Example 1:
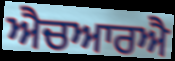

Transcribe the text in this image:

ਐਚਆਰਐ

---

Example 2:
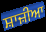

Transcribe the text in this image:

ਸ਼ਾਜ਼ੀਆ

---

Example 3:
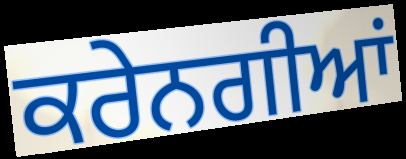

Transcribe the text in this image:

ਕਰੇਨਗੀਆਂ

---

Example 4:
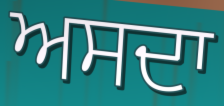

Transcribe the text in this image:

ਅਸਦਾ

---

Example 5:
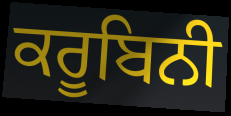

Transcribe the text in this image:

ਕਰੂਬਿਨੀ